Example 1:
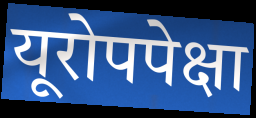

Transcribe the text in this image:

यूरोपपेक्षा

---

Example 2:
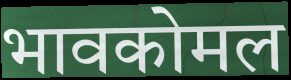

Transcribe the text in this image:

भावकोमल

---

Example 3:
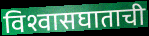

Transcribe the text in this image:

विश्वासघाताची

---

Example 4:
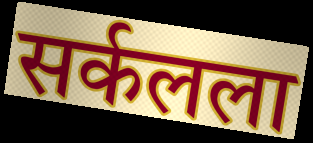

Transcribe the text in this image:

सर्कलला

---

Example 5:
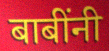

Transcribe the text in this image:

बाबींनी